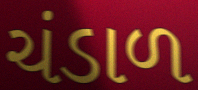
ચંડાળ